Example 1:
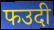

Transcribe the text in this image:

फउदी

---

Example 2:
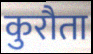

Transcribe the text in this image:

कुरौता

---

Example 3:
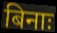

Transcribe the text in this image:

बिनाः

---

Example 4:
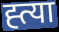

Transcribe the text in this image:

ह्त्या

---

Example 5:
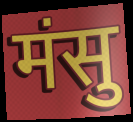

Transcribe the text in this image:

मंसु